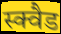
स्क्वैड